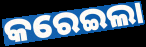
କରେଇଲା